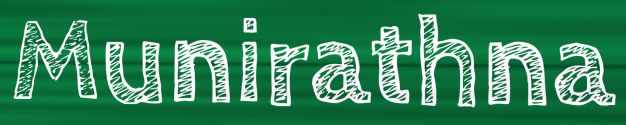
Munirathna